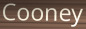
Cooney